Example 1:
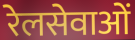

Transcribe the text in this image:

रेलसेवाओं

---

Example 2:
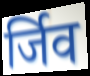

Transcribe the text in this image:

र्जिव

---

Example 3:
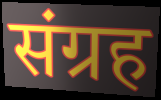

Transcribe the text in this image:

संग्रह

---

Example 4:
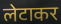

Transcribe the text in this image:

लेटाकर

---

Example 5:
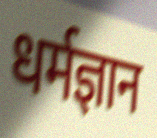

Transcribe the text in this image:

धर्मज्ञान